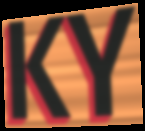
KY